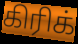
கிரிக்